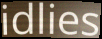
idlies